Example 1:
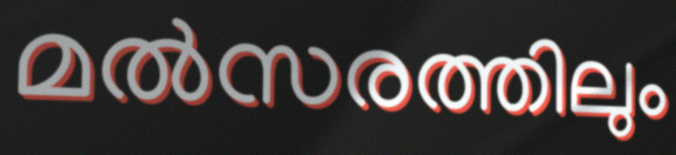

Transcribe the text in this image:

മൽസരത്തിലും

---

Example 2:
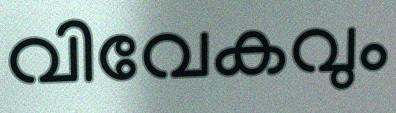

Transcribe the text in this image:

വിവേകവും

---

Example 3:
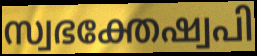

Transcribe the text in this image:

സ്വഭക്തേഷ്വപി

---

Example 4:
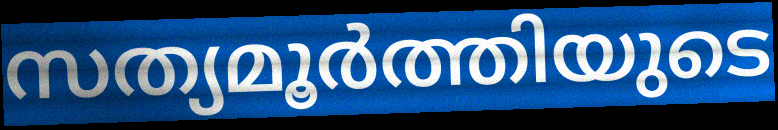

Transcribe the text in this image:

സത്യമൂർത്തിയുടെ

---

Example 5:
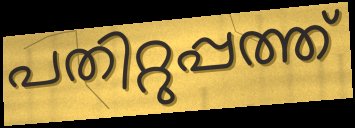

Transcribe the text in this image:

പതിറ്റുപ്പത്ത്